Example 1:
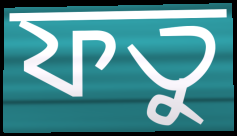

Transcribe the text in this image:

ফতু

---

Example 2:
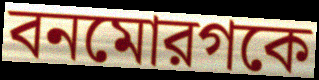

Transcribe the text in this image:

বনমোরগকে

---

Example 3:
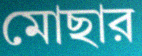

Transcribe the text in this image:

মোছার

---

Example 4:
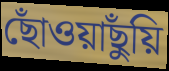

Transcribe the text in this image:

ছোঁওয়াছুঁয়ি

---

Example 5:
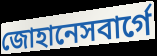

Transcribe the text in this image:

জোহানেসবার্গে